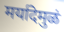
मर्यादेमुळं